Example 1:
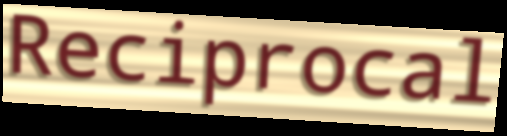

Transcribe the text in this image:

Reciprocal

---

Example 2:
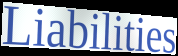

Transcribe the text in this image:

Liabilities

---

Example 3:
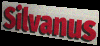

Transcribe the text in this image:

Silvanus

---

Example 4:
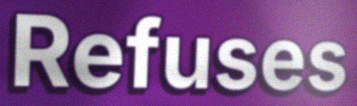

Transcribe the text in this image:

Refuses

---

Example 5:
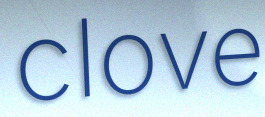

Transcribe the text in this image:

clove